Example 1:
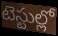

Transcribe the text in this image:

టెస్టుల్లో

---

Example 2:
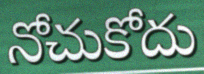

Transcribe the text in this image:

నోచుకోదు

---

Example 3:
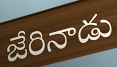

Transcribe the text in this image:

జేరినాడు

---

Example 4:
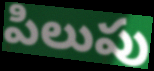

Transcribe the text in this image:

పిలుపు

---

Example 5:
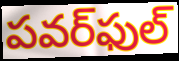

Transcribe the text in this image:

పవర్‌ఫుల్